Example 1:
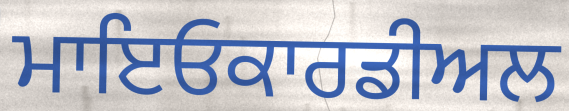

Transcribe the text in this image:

ਮਾਇਓਕਾਰਡੀਅਲ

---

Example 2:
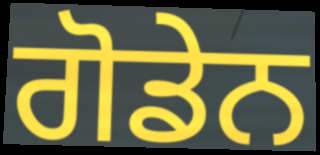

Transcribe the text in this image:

ਗੋਡੇਨ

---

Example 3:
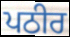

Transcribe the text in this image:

ਪਠੀਰ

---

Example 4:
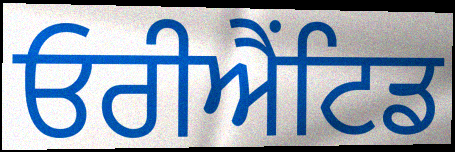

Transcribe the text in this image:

ਓਰੀਐਂਟਿਡ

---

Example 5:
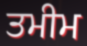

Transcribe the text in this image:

ਤਮੀਮ